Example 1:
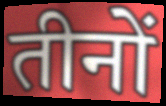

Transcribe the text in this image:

तीनों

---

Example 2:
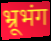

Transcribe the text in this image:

भ्रूभंग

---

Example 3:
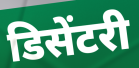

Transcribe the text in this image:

डिसेंटरी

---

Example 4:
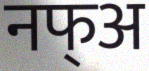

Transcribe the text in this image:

नफ्अ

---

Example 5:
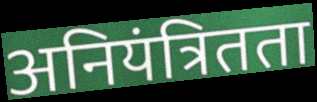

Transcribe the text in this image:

अनियंत्रितता